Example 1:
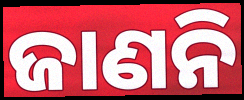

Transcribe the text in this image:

ଜାଣନି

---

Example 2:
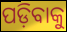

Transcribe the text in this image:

ପଡ଼ିବାକୁ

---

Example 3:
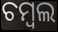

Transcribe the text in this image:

ଚମ୍ବଲ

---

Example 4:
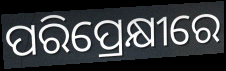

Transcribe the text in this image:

ପରିପ୍ରେକ୍ଷୀରେ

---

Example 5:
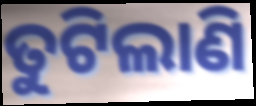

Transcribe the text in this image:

ତୁଟିଲାଣି